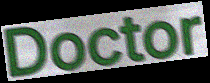
Doctor